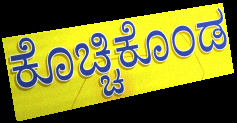
ಕೊಚ್ಚಿಕೊಂಡ